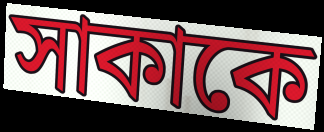
সাকাকে